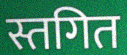
स्तगित